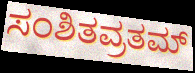
ಸಂಶಿತವ್ರತಮ್